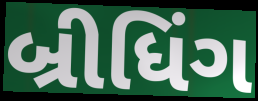
બ્રીધિંગ